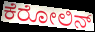
ಕೆರೋಲಿನ್